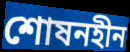
শোষনহীন